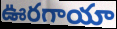
ఊరగాయా